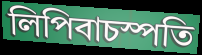
লিপিবাচস্পতি